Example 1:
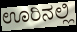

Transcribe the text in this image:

ಊರಿನಲ್ಲಿ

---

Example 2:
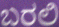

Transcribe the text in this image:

ಬರಲಿ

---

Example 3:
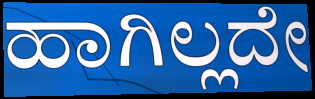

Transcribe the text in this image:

ಹಾಗಿಲ್ಲದೇ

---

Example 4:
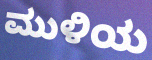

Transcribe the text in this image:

ಮುಳಿಯ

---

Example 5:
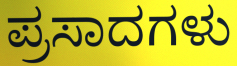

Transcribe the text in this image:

ಪ್ರಸಾದಗಳು